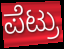
ಪೆಟ್ರು